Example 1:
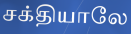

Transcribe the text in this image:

சக்தியாலே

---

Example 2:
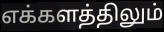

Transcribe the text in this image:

எக்களத்திலும்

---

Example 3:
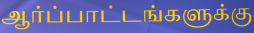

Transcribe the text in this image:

ஆர்ப்பாட்டங்களுக்கு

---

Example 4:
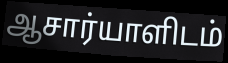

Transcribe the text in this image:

ஆசார்யாளிடம்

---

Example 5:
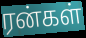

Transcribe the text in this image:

ரன்கள்